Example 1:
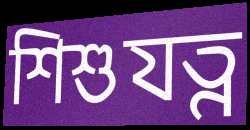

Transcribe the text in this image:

শিশুযত্ন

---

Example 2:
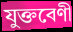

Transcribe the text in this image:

যুক্তবেণী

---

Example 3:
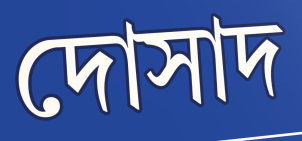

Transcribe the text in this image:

দোসাদ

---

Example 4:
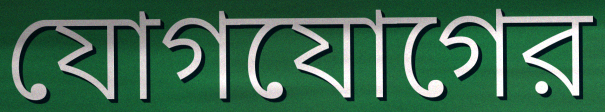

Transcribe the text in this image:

যোগযোগের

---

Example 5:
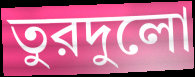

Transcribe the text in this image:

তুরদুলো